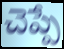
చెప్పే